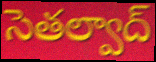
సెతల్వాద్